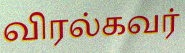
விரல்கவர்